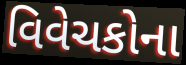
વિવેચકોના